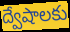
ద్వేషాలకు